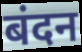
बंदन